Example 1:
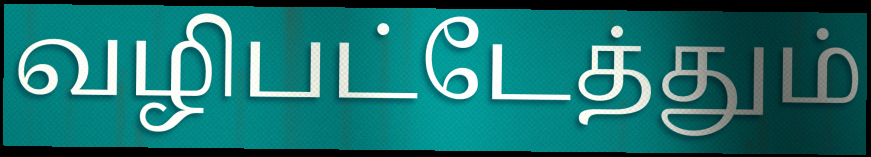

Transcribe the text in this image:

வழிபட்டேத்தும்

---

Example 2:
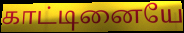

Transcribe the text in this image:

காட்டினையே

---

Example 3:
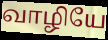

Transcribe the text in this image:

வாழியே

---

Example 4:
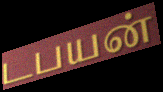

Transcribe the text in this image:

டபயன்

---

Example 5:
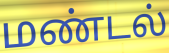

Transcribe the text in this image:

மண்டல்